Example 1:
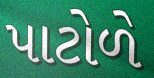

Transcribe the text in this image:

પાટોળે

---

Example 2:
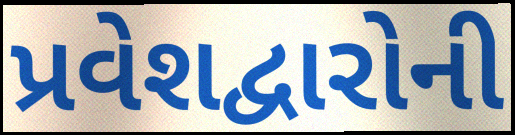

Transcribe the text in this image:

પ્રવેશદ્વારોની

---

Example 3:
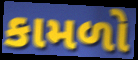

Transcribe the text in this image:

કામળો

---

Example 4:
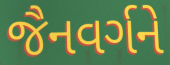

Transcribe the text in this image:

જૈનવર્ગને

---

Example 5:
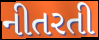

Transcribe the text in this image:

નીતરતી